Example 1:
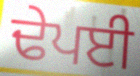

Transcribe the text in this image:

ਢੇਪਈ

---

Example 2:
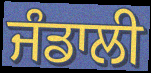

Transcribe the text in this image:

ਜੰਡਾਲੀ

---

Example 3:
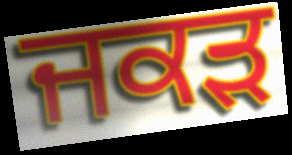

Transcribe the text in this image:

ਜਕੜ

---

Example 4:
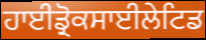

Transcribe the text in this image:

ਹਾਈਡ੍ਰੋਕਸਾਈਲੇਟਿਡ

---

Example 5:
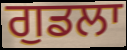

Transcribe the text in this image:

ਗੁਡਲਾ